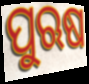
ପୁଋଷ